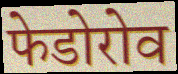
फेडोरोव